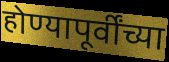
होण्यापूर्वींच्या